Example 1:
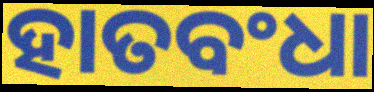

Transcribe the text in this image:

ହାତବଂଧା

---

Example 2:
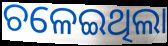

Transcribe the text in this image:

ଚଳେଇଥିଲା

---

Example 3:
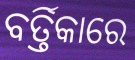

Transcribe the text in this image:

ବର୍ତ୍ତିକାରେ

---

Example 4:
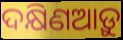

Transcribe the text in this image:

ଦକ୍ଷିଣଆଡ଼ୁ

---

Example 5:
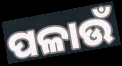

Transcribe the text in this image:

ପଳାଉଁ